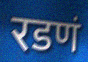
रडणं